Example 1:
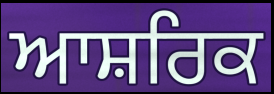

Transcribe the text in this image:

ਆਸ਼ਰਿਕ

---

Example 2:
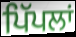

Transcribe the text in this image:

ਪਿੱਪਲਾਂ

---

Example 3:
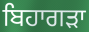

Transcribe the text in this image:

ਬਿਹਾਗੜਾ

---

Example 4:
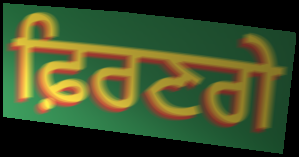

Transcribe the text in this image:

ਫ਼ਿਰਣਗੇ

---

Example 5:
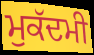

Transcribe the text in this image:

ਮੁਕੱਦਮੀ